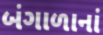
બંગાળાનાં